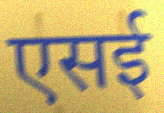
एसई